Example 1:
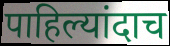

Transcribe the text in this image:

पाहिल्यांदाच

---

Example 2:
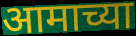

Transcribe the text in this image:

आमाच्या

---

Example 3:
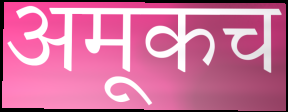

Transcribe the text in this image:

अमूकच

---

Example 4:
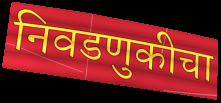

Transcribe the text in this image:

निवडणुकीचा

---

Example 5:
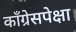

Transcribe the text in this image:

कॉंग्रेसपेक्षा